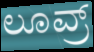
ಲೂವ್ರ್